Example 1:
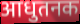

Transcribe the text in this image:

आधुतनक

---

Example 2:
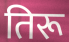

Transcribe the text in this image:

तिरू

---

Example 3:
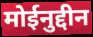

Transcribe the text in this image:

मोईनुद्दीन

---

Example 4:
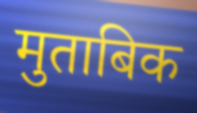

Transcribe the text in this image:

मुताबिक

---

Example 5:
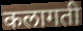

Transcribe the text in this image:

कलागती